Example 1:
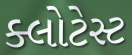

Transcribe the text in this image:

ક્લોટેસ્ટ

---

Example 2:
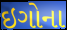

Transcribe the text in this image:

ઇગોના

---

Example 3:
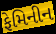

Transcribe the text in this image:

ફેમિનીન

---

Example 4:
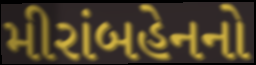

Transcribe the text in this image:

મીરાંબહેનનો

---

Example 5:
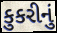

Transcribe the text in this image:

કુકરીનું